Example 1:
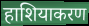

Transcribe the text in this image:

हाशियाकरण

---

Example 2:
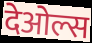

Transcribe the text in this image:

देओल्स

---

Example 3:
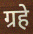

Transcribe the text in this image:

ग्रहे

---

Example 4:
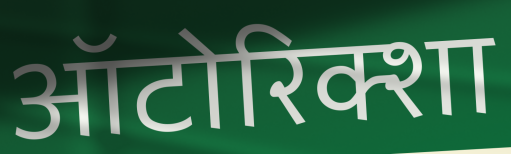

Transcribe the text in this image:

ऑटोरिक्शा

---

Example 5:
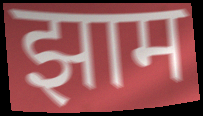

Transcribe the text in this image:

झाम